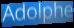
Adolphe